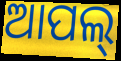
ଆପଲ୍